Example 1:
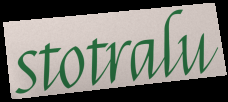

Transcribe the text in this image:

stotralu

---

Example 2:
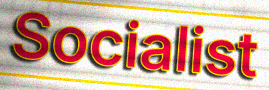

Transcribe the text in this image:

Socialist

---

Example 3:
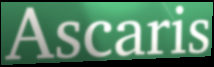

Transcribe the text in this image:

Ascaris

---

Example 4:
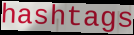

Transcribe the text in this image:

hashtags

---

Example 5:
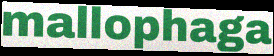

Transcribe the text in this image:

mallophaga